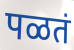
पळतं